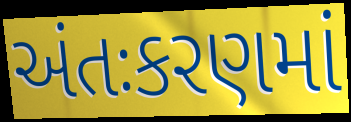
અંતઃકરણમાં